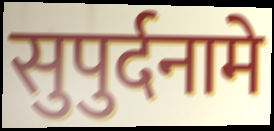
सुपुर्दनामे